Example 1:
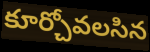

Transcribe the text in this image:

కూర్చోవలసిన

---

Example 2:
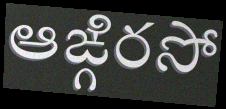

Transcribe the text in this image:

ఆఙ్గిరసో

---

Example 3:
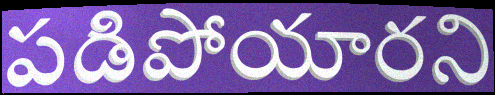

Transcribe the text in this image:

పడిపోయారని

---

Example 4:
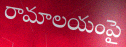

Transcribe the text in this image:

రామాలయంపై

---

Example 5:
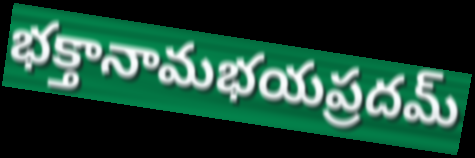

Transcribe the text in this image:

భక్తానామభయప్రదమ్